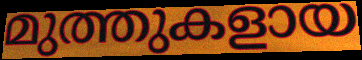
മുത്തുകളായ